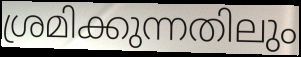
ശ്രമിക്കുന്നതിലും